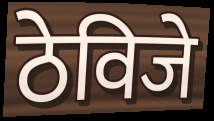
ठेविजे